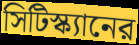
সিটিস্ক্যানের